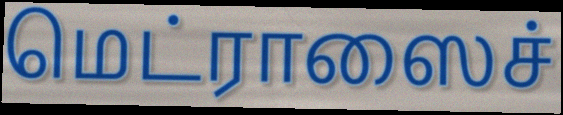
மெட்ராஸைச்